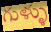
గుళ్ళు